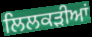
ਲਿਲਕੜੀਆਂ